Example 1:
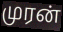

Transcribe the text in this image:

முரன்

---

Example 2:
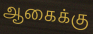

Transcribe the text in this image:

ஆகைக்கு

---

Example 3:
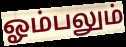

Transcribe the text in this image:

ஓம்பலும்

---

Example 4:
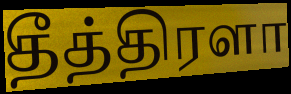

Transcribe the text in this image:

தீத்திரளா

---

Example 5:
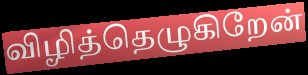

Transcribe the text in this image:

விழித்தெழுகிறேன்